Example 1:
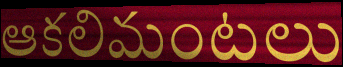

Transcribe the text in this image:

ఆకలిమంటలు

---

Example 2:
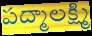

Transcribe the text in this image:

పద్మాలక్ష్మి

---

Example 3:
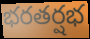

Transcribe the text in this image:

భరతర్షభ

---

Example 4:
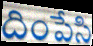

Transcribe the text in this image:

దింపేసి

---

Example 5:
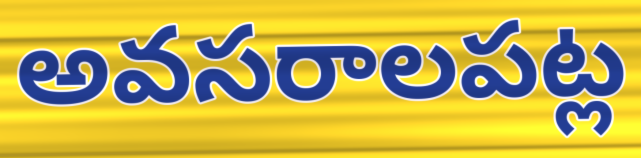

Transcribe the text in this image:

అవసరాలపట్ల